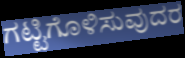
ಗಟ್ಟಿಗೊಳಿಸುವುದರ